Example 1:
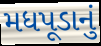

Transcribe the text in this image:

મધપૂડાનું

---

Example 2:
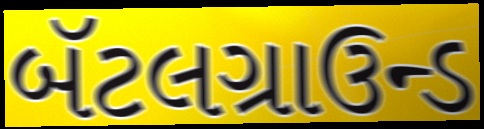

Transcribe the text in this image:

બૅટલગ્રાઉન્ડ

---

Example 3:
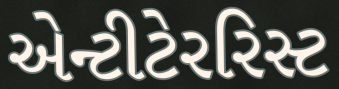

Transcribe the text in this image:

એન્ટીટેરરિસ્ટ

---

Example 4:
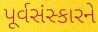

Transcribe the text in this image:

પૂર્વસંસ્કારને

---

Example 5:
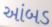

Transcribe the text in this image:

આંબડ